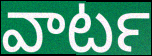
వాటర్‍